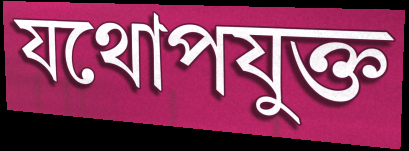
যথোপযুক্ত